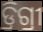
ଡ୍ରିଗ୍ରୀ